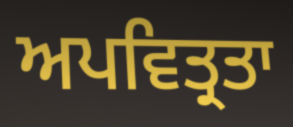
ਅਪਵਿਤ੍ਰਤਾ